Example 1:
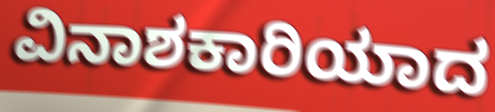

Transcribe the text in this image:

ವಿನಾಶಕಾರಿಯಾದ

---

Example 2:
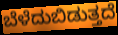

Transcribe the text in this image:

ಬೆಳೆದುಬಿಡುತ್ತದೆ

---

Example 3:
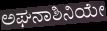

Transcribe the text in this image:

ಅಘನಾಶಿನಿಯೇ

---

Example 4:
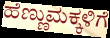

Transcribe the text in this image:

ಹೆಣ್ಣುಮಕ್ಕಳಿಗೆ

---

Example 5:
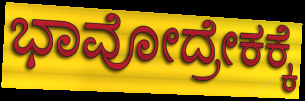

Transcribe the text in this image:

ಭಾವೋದ್ರೇಕಕ್ಕೆ